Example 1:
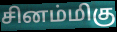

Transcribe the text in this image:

சினம்மிகு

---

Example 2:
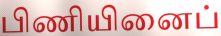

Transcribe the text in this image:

பிணியினைப்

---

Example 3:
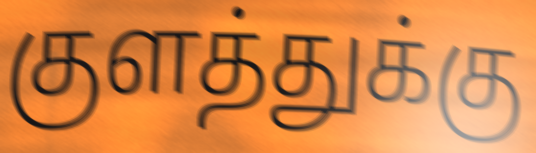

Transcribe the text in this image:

குளத்துக்கு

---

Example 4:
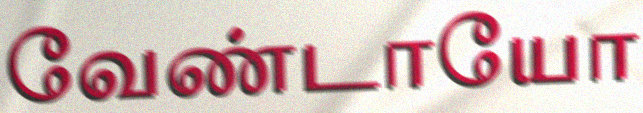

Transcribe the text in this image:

வேண்டாயோ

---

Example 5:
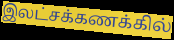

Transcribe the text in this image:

இலட்சக்கணக்கில்